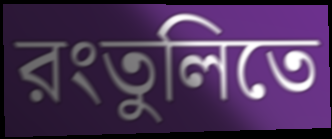
রংতুলিতে